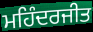
ਮਹਿੰਦਰਜੀਤ